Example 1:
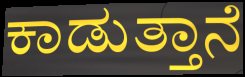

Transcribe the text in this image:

ಕಾಡುತ್ತಾನೆ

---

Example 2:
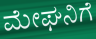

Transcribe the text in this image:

ಮೇಘನಿಗೆ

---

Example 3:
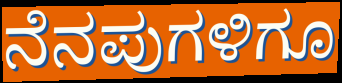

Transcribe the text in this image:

ನೆನಪುಗಳಿಗೂ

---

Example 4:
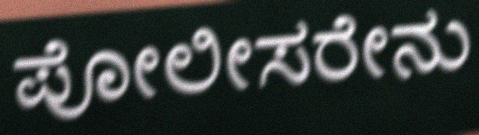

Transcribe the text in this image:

ಪೋಲೀಸರೇನು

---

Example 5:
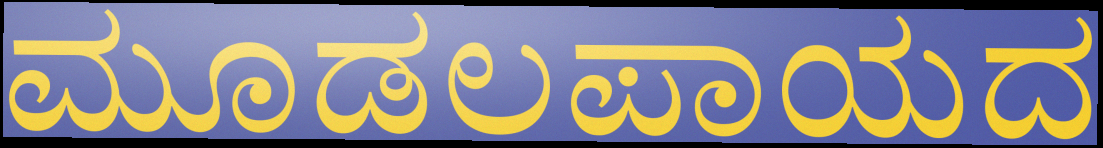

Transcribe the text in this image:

ಮೂಡಲಪಾಯದ